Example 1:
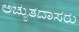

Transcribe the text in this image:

ಅಚ್ಯುತದಾಸರು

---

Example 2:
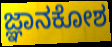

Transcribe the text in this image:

ಜ್ಞಾನಕೋಶ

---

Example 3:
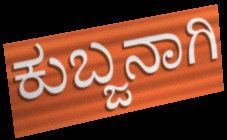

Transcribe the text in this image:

ಕುಬ್ಜನಾಗಿ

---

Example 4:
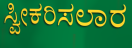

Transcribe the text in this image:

ಸ್ವೀಕರಿಸಲಾರ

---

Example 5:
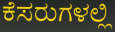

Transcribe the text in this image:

ಕೆಸರುಗಳಲ್ಲಿ